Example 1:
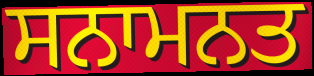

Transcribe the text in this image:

ਸਨਾਮਨਤ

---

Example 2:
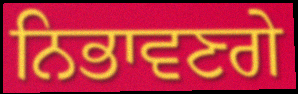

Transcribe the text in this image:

ਨਿਭਾਵਣਗੇ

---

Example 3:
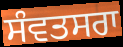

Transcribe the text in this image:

ਸੰਵਤਸਰਾ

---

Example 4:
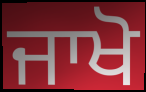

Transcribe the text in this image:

ਜਾਖੋ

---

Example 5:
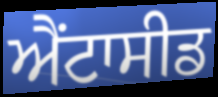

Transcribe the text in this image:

ਐਂਟਾਸੀਡ